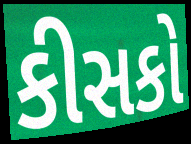
કીસકો